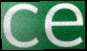
ce